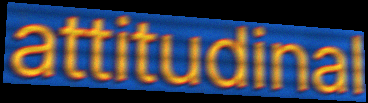
attitudinal